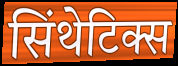
सिंथेटिक्स